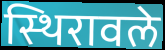
स्थिरावले